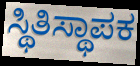
ಸ್ಥಿತಿಸ್ಥಾಪಕ